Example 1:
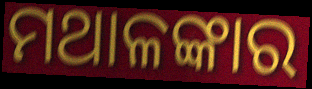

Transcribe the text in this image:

ମଥାଳଙ୍କାର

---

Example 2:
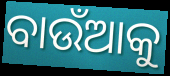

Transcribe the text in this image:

ବାଉଁଆକୁ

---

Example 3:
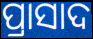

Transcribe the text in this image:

ପ୍ରାସାଦ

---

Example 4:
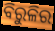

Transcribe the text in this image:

ବିରୁଳିର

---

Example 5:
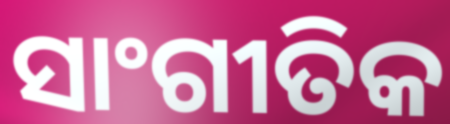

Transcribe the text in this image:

ସାଂଗୀତିକ